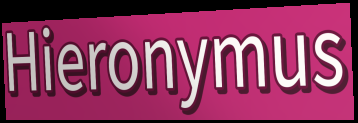
Hieronymus